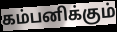
கம்பனிக்கும்